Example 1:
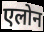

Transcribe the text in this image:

एलोन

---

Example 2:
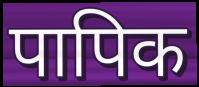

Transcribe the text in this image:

पापिक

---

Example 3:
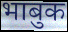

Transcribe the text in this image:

भाबुक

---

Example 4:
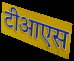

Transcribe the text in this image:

टीआएस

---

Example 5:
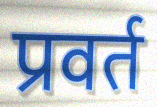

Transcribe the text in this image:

प्रवर्त